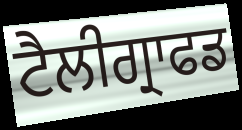
ਟੈਲੀਗ੍ਰਾਫਡ